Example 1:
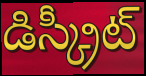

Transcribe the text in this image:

డిస్క్రీట్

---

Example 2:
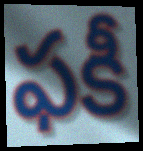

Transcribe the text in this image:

ఫకీ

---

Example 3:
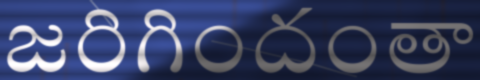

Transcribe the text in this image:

జరిగిందంతా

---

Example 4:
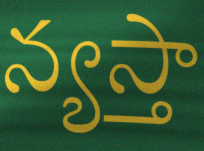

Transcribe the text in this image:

న్యస్తా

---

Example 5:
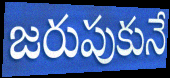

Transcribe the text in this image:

జరుపుకునే